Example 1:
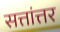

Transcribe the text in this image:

सत्तांत्तर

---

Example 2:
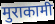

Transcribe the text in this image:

मुराकामी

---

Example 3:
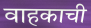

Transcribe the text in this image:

वाहकाची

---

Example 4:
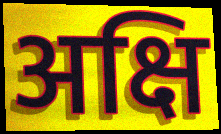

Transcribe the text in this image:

अक्षि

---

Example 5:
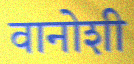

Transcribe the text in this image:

वानोशी